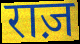
राज़